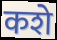
कशे